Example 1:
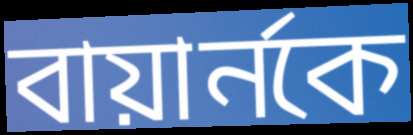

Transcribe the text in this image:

বায়ার্নকে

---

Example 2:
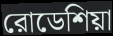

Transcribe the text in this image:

রোডেশিয়া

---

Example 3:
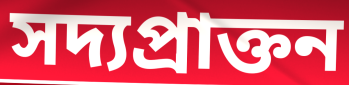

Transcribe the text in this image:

সদ্যপ্রাক্তন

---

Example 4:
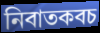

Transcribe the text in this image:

নিবাতকবচ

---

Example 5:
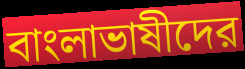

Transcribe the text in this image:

বাংলাভাষীদের